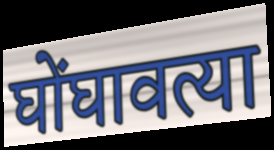
घोंघावत्या